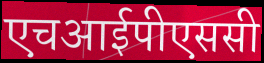
एचआईपीएससी